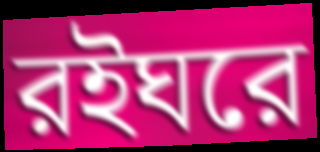
রইঘরে